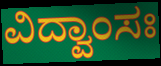
ವಿದ್ವಾಂಸಃ